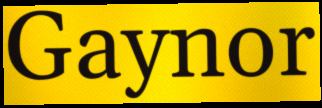
Gaynor